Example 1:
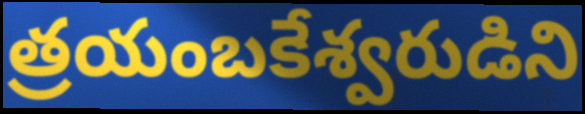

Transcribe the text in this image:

త్రయంబకేశ్వరుడిని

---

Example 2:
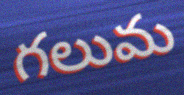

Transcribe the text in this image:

గలుమ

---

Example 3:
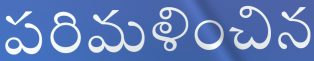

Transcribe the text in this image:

పరిమళించిన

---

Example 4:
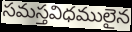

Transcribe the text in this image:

సమస్తవిధములైన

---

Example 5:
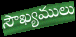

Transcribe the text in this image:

సౌఖ్యములు